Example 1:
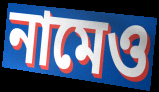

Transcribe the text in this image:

নামেও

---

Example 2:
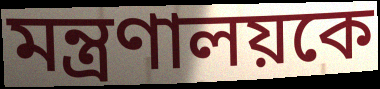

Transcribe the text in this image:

মন্ত্রণালয়কে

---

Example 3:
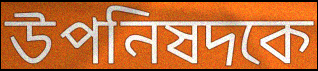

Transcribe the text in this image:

উপনিষদকে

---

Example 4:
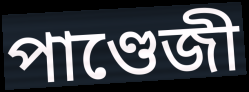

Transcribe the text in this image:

পাণ্ডেজী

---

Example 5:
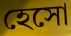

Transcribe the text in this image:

হেসো